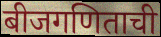
बीजगणिताची